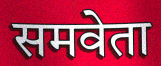
समवेता